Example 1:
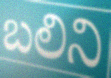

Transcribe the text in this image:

బలిని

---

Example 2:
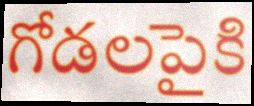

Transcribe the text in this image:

గోడలపైకి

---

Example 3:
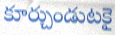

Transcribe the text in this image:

కూర్చుండుటకై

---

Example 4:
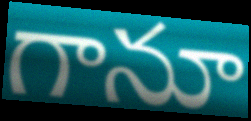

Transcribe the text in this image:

గానూ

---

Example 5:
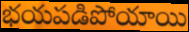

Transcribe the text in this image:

భయపడిపోయాయి